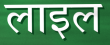
लाइल